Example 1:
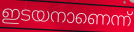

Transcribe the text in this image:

ഇടയനാണെന്ന്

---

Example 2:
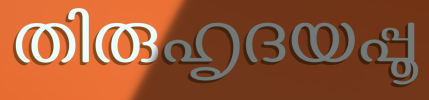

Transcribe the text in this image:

തിരുഹൃദയപ്പൂ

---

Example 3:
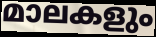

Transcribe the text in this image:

മാലകളും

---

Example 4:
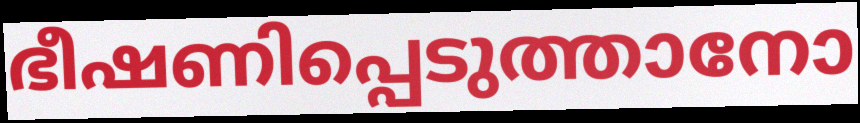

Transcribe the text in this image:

ഭീഷണിപ്പെടുത്താനോ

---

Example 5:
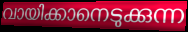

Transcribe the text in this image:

വായിക്കാനെടുക്കുന്ന